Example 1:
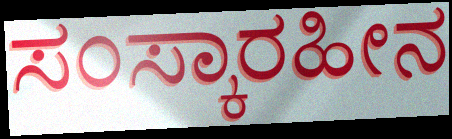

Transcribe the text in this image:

ಸಂಸ್ಕಾರಹೀನ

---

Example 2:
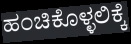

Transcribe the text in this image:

ಹಂಚಿಕೊಳ್ಳಲಿಕ್ಕೆ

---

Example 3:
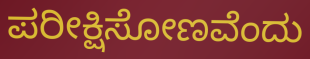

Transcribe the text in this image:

ಪರೀಕ್ಷಿಸೋಣವೆಂದು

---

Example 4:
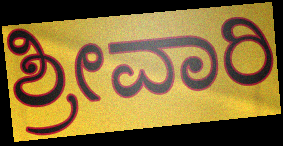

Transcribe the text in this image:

ಶ್ರೀವಾರಿ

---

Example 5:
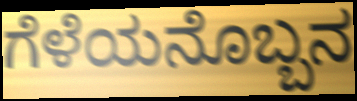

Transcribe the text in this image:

ಗೆಳೆಯನೊಬ್ಬನ